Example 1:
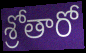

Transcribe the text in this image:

శ్రోతారో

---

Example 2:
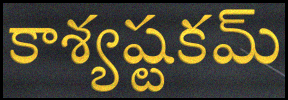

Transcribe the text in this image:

కాశ్యష్టకమ్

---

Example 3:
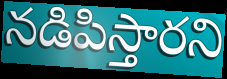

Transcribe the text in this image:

నడిపిస్తారని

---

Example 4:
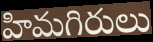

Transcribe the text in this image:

హిమగిరులు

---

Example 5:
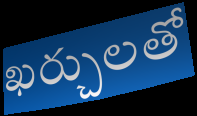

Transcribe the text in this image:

ఖర్చులతో